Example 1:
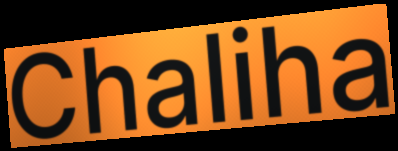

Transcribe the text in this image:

Chaliha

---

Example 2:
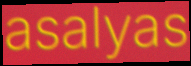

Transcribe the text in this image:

asalyas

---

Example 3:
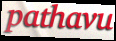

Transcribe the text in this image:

pathavu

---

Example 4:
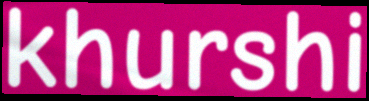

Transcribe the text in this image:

khurshi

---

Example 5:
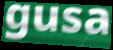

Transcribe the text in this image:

gusa